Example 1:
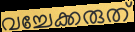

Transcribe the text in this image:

വച്ചേക്കരുത്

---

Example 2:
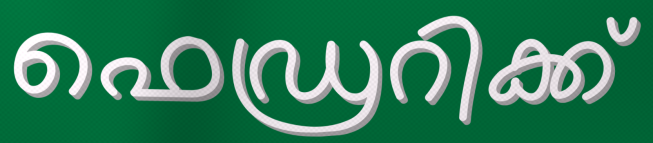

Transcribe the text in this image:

ഫെഡ്രറിക്ക്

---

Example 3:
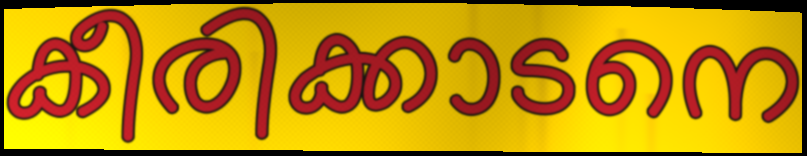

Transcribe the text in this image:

കീരിക്കാടനെ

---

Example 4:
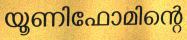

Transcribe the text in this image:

യൂണിഫോമിന്റെ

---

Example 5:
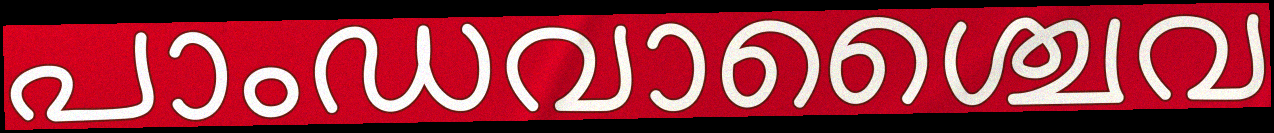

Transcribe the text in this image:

പാംഡവാശ്ചൈവ